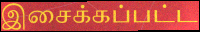
இசைக்கப்பட்ட